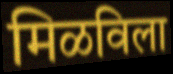
मिळविला